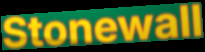
Stonewall